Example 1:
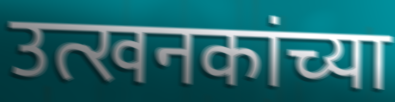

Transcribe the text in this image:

उत्खनकांच्या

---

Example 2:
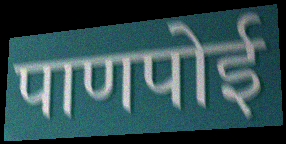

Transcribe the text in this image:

पाणपोई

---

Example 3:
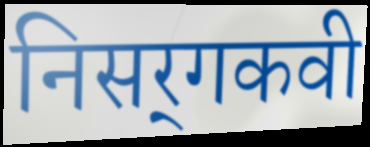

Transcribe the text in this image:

निसर्गकवी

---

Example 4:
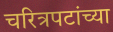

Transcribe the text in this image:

चरित्रपटांच्या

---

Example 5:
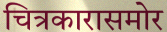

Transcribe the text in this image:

चित्रकारासमोर